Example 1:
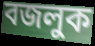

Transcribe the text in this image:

বজলুক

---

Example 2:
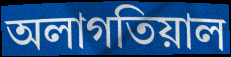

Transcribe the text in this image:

অলাগতিয়াল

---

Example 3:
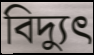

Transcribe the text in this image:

বিদ্যুৎ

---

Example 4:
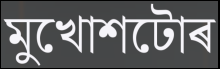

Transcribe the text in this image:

মুখোশটোৰ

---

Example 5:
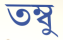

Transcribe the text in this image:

তম্বু